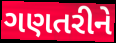
ગણતરીને